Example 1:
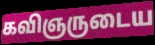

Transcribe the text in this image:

கவிஞருடைய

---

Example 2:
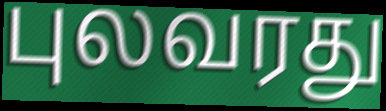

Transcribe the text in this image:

புலவரது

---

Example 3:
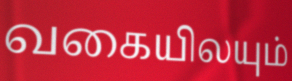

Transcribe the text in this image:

வகையிலயும்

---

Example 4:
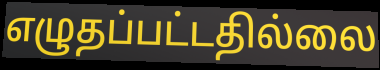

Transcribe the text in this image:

எழுதப்பட்டதில்லை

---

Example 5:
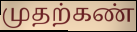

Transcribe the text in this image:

முதற்கண்